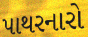
પાથરનારો